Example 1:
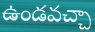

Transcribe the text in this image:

ఉండవచ్చా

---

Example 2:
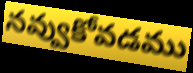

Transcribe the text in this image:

నవ్వుకోవడము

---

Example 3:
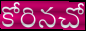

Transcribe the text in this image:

కోరినచో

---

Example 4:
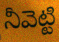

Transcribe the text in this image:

నీవెట్టి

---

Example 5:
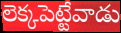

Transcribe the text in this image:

లెక్కపెట్టేవాడు